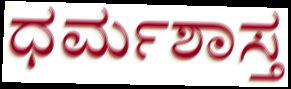
ಧರ್ಮಶಾಸ್ತ